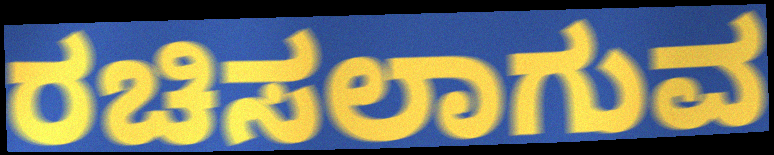
ರಚಿಸಲಾಗುವ